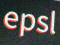
epsl